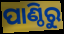
ପାଣ୍ଠିରୁ